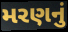
મરણનું